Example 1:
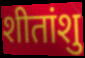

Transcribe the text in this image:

शीतांशु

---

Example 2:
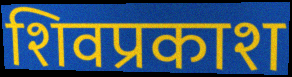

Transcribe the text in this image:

शिवप्रकाश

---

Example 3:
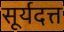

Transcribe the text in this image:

सूर्यदत्त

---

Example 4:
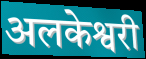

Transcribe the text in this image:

अलकेश्वरी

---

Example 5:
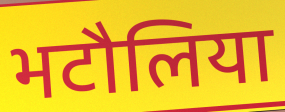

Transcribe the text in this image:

भटौलिया